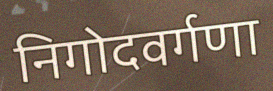
निगोदवर्गणा